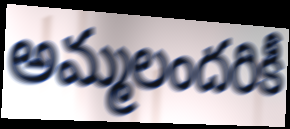
అమ్మలందరికీ